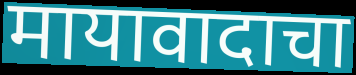
मायावादाचा